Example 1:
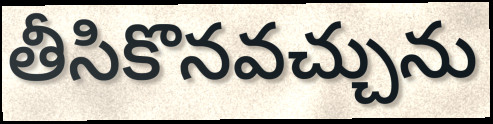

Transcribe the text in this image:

తీసికొనవచ్చును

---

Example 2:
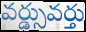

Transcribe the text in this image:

వర్డ్సువర్తు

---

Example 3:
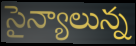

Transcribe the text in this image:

సైన్యాలున్న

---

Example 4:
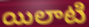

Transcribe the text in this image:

యిలాటి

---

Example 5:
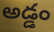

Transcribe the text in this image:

అడ్డం